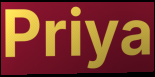
Priya